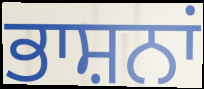
ਭਾਸ਼ਨਾਂ